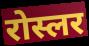
रोस्लर